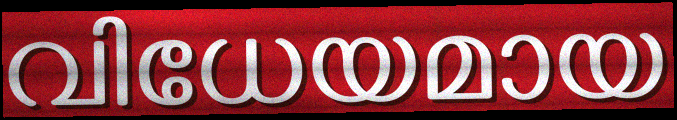
വിധേയമായ